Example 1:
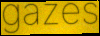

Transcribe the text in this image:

gazes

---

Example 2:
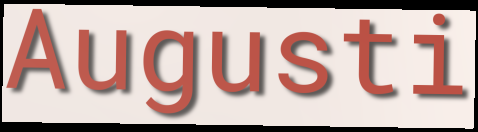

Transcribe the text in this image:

Augusti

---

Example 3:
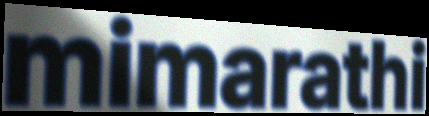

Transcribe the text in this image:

mimarathi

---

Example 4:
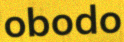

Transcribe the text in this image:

obodo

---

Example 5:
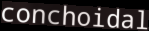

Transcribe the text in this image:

conchoidal